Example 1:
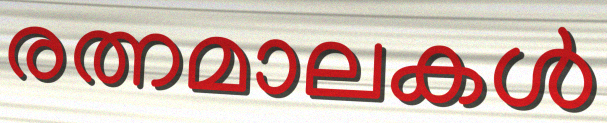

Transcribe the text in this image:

രത്നമാലകൾ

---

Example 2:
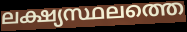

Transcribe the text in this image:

ലക്ഷ്യസ്ഥലത്തെ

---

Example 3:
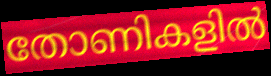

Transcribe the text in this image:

തോണികളിൽ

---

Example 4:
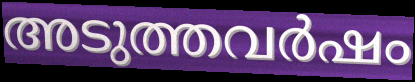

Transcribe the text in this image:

അടുത്തവർഷം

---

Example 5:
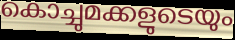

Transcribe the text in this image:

കൊച്ചുമക്കളുടെയും